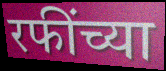
रफींच्या